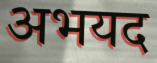
अभयद